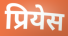
प्रियेस